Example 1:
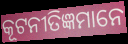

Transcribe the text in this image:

କୂଟନୀତିଜ୍ଞମାନେ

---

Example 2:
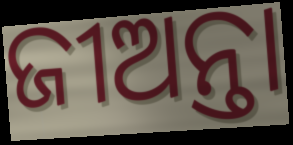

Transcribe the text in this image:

ଜୀଅନ୍ତା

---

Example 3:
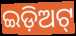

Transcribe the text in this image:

ଇଡ଼ିଅଟ୍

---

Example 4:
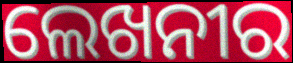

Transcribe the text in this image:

ଲେଖନୀର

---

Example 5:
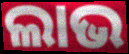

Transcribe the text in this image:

ଲାଭ